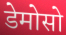
डेमोसो